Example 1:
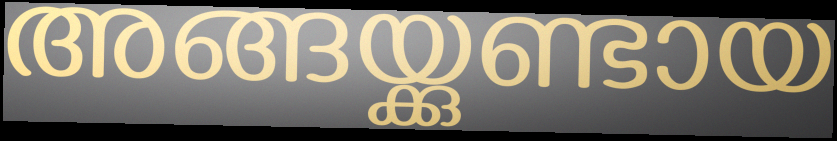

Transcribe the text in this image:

അങ്ങയ്ക്കുണ്ടായ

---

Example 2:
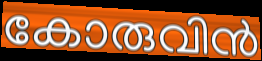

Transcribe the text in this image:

കോരുവിൻ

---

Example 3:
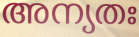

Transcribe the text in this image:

അന്യതഃ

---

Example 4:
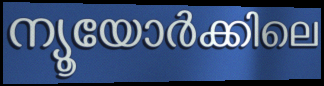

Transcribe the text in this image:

ന്യൂയോർക്കിലെ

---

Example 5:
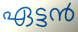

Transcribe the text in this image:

ഏട്ടൻ